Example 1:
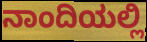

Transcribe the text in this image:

ನಾಂದಿಯಲ್ಲಿ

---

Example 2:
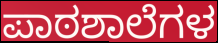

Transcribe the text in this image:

ಪಾಠಶಾಲೆಗಳ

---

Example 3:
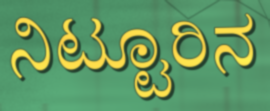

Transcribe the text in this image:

ನಿಟ್ಟೂರಿನ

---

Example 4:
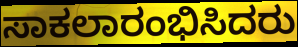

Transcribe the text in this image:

ಸಾಕಲಾರಂಭಿಸಿದರು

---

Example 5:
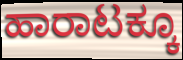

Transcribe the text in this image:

ಹಾರಾಟಕ್ಕೂ